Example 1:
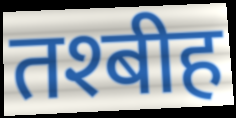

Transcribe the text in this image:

तश्बीह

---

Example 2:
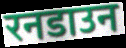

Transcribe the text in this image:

रनडाउन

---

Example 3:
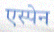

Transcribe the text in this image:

एस्पेन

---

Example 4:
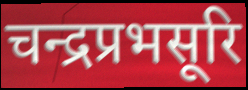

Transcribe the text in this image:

चन्द्रप्रभसूरि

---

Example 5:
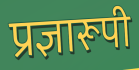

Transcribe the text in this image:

प्रज्ञारूपी